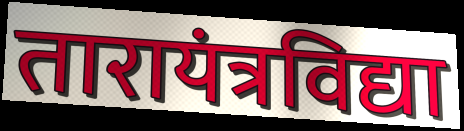
तारायंत्रविद्या